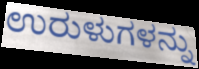
ಉರುಳುಗಳನ್ನು